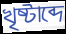
খৃষ্টাব্দে